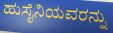
ಹುಸೈನಿಯವರನ್ನು